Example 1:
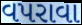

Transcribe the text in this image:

વપરાવા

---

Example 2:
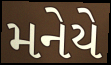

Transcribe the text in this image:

મનેયે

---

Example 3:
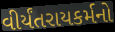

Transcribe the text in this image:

વીર્યંતરાયકર્મનો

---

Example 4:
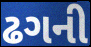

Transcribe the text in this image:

ઢગની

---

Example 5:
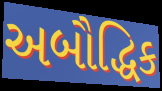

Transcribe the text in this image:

અબૌદ્ધિક